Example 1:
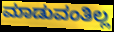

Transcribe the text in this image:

ಮಾಡುವಂತಿಲ್ಲ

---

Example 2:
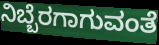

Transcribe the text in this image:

ನಿಬ್ಬೆರಗಾಗುವಂತೆ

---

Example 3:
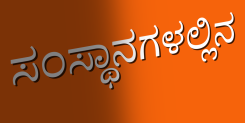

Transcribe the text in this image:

ಸಂಸ್ಥಾನಗಳಲ್ಲಿನ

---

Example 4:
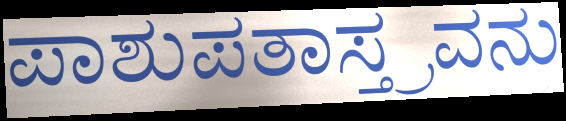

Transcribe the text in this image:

ಪಾಶುಪತಾಸ್ತ್ರವನು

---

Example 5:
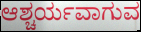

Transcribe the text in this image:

ಆಶ್ಚರ್ಯವಾಗುವ